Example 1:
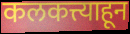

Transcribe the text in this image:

कलकत्त्याहून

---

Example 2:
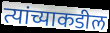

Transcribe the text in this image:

त्यांच्याकडील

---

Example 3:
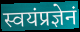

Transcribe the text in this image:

स्वयंप्रज्ञेनं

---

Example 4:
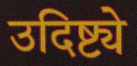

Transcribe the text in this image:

उदिष्ट्ये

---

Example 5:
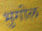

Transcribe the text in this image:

भुगोल